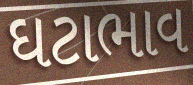
ઘટાભાવ